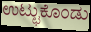
ಉಟ್ಟುಕೊಂಡು